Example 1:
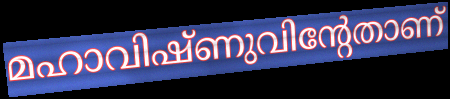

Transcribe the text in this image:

മഹാവിഷ്ണുവിന്റേതാണ്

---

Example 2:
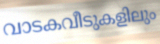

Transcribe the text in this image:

വാടകവീടുകളിലും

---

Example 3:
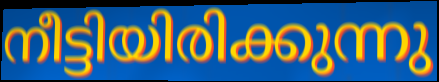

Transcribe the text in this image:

നീട്ടിയിരിക്കുന്നു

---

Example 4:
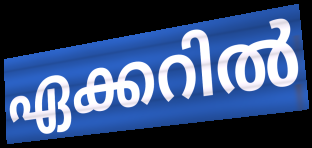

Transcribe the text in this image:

ഏക്കറിൽ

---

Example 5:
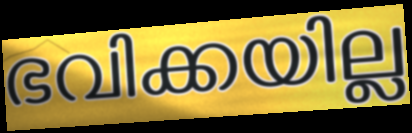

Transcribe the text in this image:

ഭവിക്കയില്ല